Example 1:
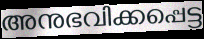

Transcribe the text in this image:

അനുഭവിക്കപ്പെട്ട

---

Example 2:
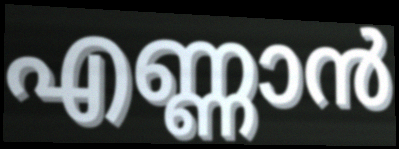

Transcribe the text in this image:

എണ്ണാൻ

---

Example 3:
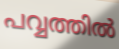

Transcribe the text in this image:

പവ്വത്തിൽ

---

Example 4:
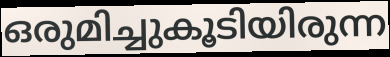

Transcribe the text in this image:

ഒരുമിച്ചുകൂടിയിരുന്ന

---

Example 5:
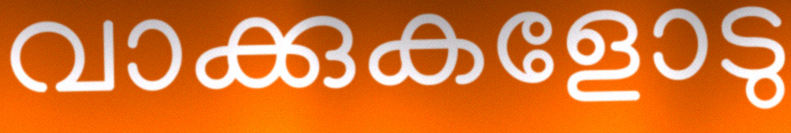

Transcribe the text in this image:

വാക്കുകളോടു